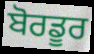
ਬੋਰਡੂਰ